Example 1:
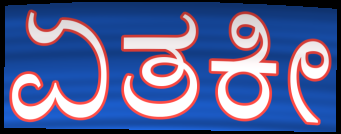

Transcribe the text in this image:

ಏತಕೀ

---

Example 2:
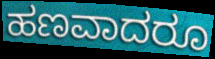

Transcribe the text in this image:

ಹಣವಾದರೂ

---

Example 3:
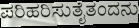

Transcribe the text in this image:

ಪರಿಹರಿಸುತೈತಂದನು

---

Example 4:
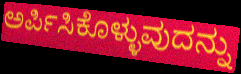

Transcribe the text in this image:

ಅರ್ಪಿಸಿಕೊಳ್ಳುವುದನ್ನು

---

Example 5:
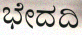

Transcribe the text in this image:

ಭೇದದಿ